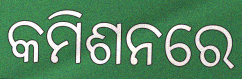
କମିଶନରେ